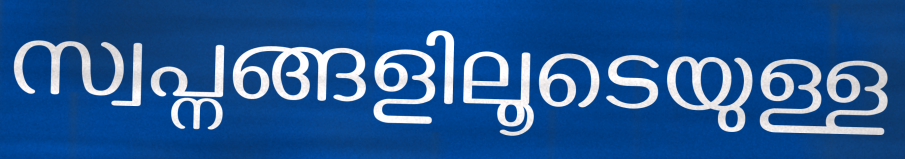
സ്വപ്നങ്ങളിലൂടെയുള്ള